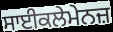
ਸਾਈਕਲੇਮੇਨਜ਼